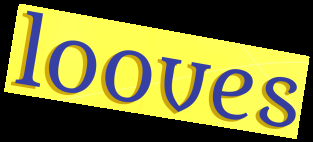
looues